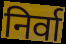
निर्वा